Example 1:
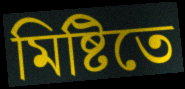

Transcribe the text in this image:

মিষ্টিতে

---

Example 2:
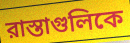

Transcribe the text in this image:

রাস্তাগুলিকে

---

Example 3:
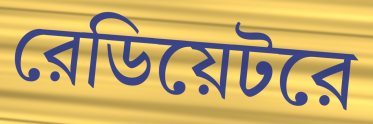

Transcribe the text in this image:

রেডিয়েটরে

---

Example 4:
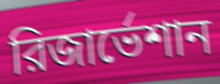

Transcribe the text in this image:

রিজার্ভেশান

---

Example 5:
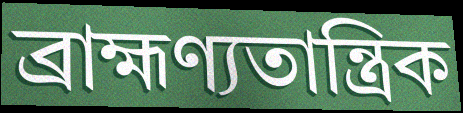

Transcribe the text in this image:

ব্রাহ্মণ্যতান্ত্রিক